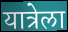
यात्रेला